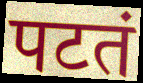
पटतं